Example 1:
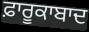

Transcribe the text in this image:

ਫ਼ਾਰੂਕਾਬਾਦ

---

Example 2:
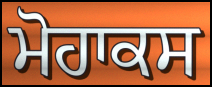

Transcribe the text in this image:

ਮੋਹਾਕਸ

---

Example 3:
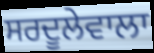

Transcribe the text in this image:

ਸਰਦੂਲੇਵਾਲਾ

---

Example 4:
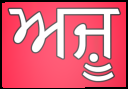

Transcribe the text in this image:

ਅਜ਼ੂ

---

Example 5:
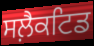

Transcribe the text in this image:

ਸਲ਼ੈਕਟਿਡ